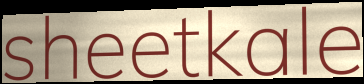
sheetkale